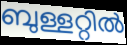
ബുള്ളറ്റിൽ